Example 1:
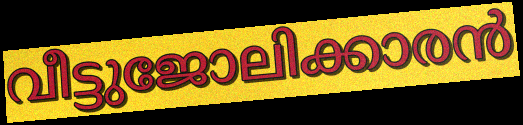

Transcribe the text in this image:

വീട്ടുജോലിക്കാരൻ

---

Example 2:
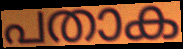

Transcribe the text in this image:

പതാക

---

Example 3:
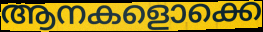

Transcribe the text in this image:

ആനകളൊക്കെ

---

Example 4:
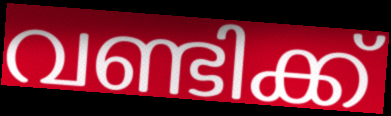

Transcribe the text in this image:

വണ്ടിക്ക്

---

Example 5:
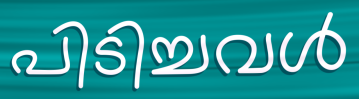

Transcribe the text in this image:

പിടിച്ചവൾ